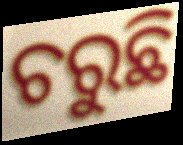
ଚରୁଛି